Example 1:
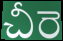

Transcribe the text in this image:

చీరె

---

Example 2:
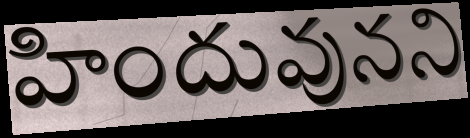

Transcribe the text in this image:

హిందువునని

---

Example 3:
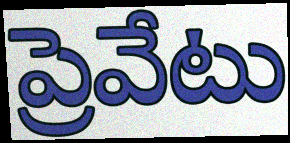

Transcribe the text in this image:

ప్రెవేటు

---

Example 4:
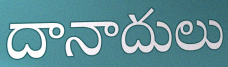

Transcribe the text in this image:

దానాదులు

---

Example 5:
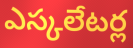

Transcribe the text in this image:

ఎస్కలేటర్ల